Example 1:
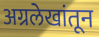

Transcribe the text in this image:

अग्रलेखांतून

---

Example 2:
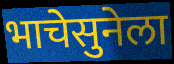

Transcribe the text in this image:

भाचेसुनेला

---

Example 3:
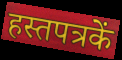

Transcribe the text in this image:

हस्तपत्रकें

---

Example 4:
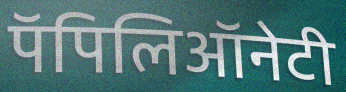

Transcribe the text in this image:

पॅपिलिऑनेटी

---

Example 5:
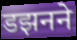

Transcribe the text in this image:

डझनने